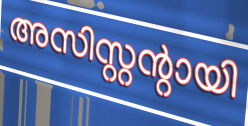
അസിസ്റ്റന്റായി